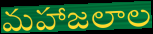
మహాజలాల